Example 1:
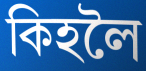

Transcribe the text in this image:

কিহলৈ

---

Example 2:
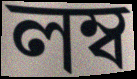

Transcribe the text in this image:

লম্ব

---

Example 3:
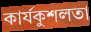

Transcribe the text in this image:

কাৰ্যকুশলতা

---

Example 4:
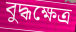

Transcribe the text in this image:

বুদ্ধক্ষেত্ৰ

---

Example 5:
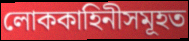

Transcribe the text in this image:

লোককাহিনীসমূহত